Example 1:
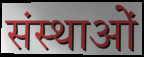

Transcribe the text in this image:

संस्थाओं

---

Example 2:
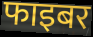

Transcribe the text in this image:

फाइबर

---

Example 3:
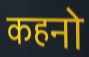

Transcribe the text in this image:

कहनो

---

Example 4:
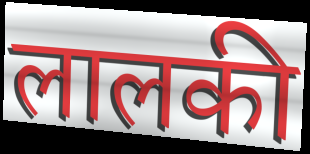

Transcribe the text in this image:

लालकी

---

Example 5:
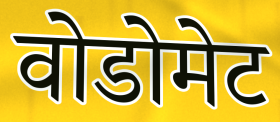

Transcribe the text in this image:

वोडोमेट